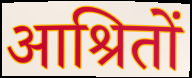
आश्रितों